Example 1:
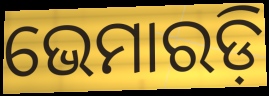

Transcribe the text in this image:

ଭେମାରଡ଼ି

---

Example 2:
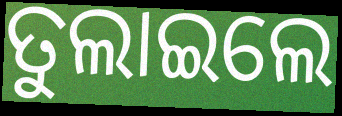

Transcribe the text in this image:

ତୁଲାଇଲେ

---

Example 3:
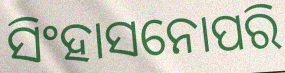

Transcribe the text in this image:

ସିଂହାସନୋପରି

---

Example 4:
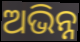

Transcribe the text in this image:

ଅଭିନ୍ନ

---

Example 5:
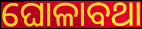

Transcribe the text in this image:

ଘୋଳାବଥା